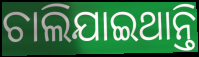
ଚାଲିଯାଇଥାନ୍ତି